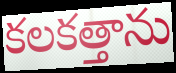
కలకత్తాను